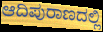
ಆದಿಪುರಾಣದಲ್ಲಿ